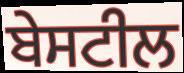
ਬੇਸਟੀਲ